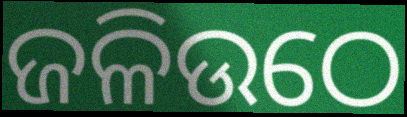
ଜଳିଉଠେ